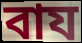
বায